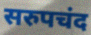
सरुपचंद